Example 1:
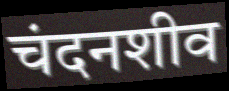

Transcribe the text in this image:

चंदनशीव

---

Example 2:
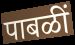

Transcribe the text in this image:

पाबळीं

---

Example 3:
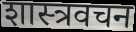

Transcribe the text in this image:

शास्त्रवचन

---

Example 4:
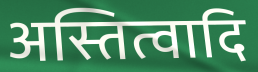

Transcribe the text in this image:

अस्तित्वादि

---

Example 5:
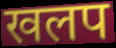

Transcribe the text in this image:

खलप